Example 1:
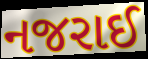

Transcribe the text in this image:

નજરાઈ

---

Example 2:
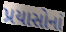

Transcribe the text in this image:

પ્રયાસોનાં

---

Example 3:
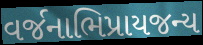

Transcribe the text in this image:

વર્જનાભિપ્રાયજન્ય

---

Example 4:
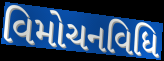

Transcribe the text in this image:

વિમોચનવિધિ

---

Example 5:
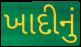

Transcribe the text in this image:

ખાદીનું